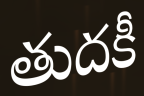
తుదకీ